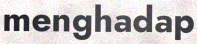
menghadap